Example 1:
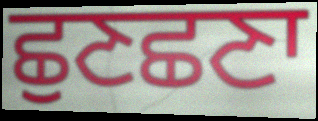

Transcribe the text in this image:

ਛੁਣਛਣਾ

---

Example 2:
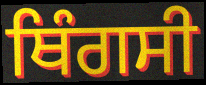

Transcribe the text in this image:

ਥਿੰਗਸੀ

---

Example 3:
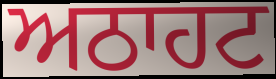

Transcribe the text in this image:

ਅਠਾਹਟ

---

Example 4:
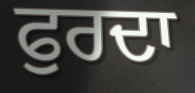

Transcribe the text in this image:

ਫੁਰਦਾ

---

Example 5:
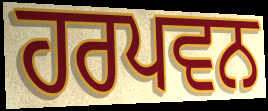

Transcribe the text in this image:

ਹਰਪਵਨ